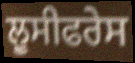
ਲੂਸੀਫਰੇਸ